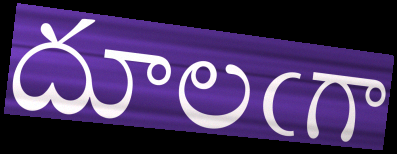
దూలఁగా